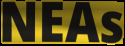
NEAs